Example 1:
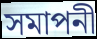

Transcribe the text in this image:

সমাপনী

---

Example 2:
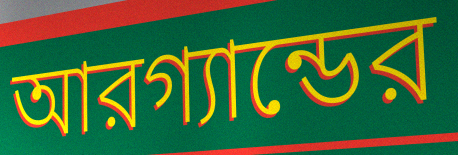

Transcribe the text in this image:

আরগ্যান্ডের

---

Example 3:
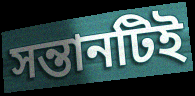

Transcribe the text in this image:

সন্তানটিই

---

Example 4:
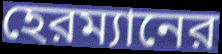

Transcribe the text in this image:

হেরম্যানের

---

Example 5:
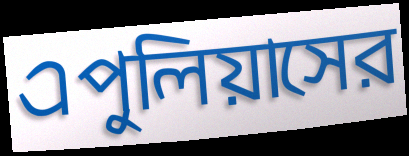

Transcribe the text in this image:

এপুলিয়াসের